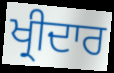
ਖ੍ਰੀਦਾਰ